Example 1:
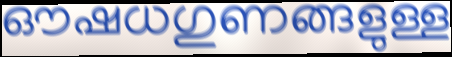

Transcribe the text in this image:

ഔഷധഗുണങ്ങളുള്ള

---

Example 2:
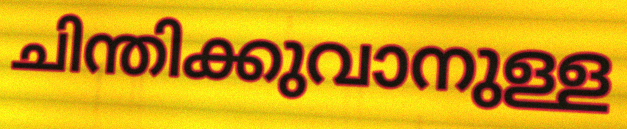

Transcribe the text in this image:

ചിന്തിക്കുവാനുള്ള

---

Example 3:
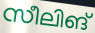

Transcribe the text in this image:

സീലിങ്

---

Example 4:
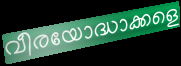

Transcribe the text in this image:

വീരയോദ്ധാക്കളെ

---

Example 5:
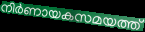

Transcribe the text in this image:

നിർണായകസമയത്ത്